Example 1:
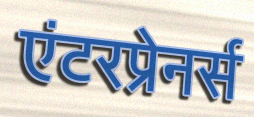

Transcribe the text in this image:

एंटरप्रेनर्स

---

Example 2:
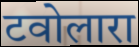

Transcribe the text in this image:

टवोलारा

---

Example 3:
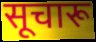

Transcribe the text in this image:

सूचारू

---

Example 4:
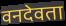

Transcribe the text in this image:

वनदेवता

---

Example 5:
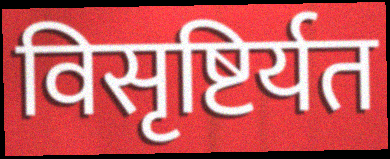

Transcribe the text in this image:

विसृष्टिर्यत